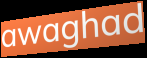
awaghad